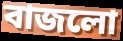
বাজলো